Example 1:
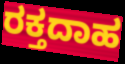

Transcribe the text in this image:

ರಕ್ತದಾಹ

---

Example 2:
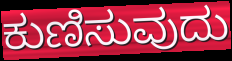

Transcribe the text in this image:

ಕುಣಿಸುವುದು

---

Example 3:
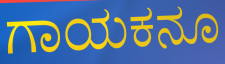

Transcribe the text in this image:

ಗಾಯಕನೂ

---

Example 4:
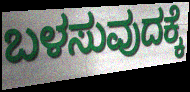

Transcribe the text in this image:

ಬಳಸುವುದಕ್ಕೆ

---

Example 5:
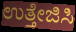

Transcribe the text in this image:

ಉತ್ತೇಜಿಸಿ